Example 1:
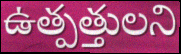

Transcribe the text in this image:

ఉత్పత్తులని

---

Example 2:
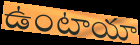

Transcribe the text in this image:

ఉంటాయా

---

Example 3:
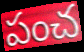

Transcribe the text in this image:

పంచ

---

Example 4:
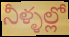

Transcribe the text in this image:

నీళ్ళల్లో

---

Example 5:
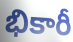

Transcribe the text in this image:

భికారీ